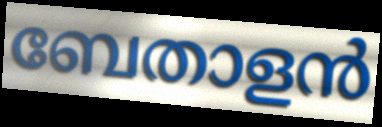
ബേതാളൻ